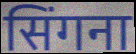
सिंगना